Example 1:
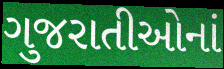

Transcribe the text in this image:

ગુજરાતીઓનાં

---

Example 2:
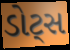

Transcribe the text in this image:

ડોટ્સ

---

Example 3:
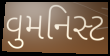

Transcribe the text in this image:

વુમનિસ્ટ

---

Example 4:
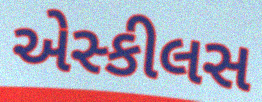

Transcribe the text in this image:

એસ્કીલસ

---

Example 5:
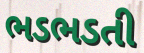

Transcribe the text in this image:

ભડભડતી